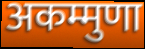
अकम्मुणा